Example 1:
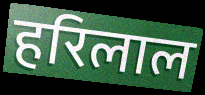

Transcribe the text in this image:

हरिलाल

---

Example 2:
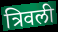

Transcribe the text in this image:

त्रिवली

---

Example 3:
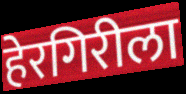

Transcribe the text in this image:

हेरगिरीला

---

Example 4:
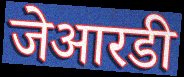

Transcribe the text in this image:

जेआरडी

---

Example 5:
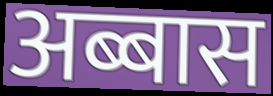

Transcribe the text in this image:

अब्बास